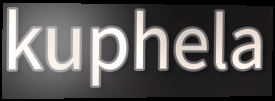
kuphela